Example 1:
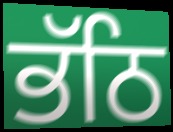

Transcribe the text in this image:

ਭੱਠਿ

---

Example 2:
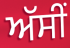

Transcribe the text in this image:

ਅੱਸੀਂ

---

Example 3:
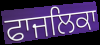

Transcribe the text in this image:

ਫਾਜਲਿਕਾ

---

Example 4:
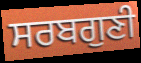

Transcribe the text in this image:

ਸਰਬਗੁਣੀ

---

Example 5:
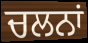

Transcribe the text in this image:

ਚਲਨਾਂ